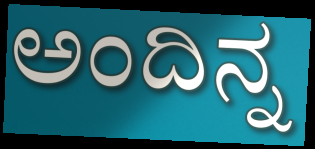
ಅಂದಿನ್ನ